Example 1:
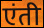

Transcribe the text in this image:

एंती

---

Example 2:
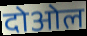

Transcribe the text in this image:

दोओल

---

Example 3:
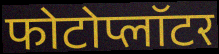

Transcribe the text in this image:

फोटोप्लॉटर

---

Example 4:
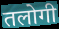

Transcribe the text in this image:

तलोगी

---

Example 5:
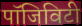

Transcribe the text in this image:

पॉजिविटी